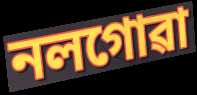
নলগোৱা